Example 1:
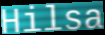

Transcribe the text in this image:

Hilsa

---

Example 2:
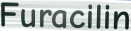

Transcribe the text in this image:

Furacilin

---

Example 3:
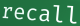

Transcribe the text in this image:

recall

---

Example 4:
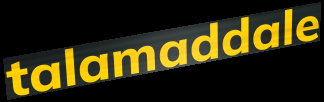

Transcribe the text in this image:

talamaddale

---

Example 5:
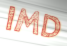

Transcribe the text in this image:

IMD